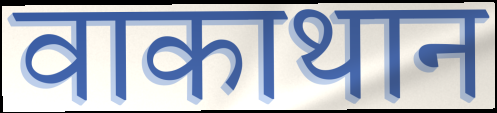
वाकाथान